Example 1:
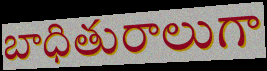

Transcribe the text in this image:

బాధితురాలుగా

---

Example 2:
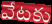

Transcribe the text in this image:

వేటకు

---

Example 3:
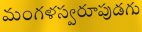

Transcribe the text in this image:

మంగళస్వరూపుడగు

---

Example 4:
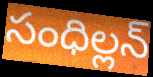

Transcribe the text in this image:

సంధిల్లన్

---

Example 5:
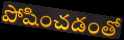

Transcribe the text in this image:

పోషించడంతో